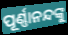
ପୂର୍ଣ୍ଣାନନ୍ଦଙ୍କୁ